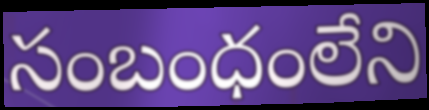
సంబంధంలేని